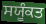
ਸਯੂੰਕਤ